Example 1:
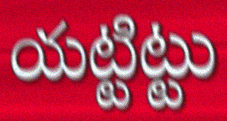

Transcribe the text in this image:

యట్టిట్టు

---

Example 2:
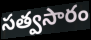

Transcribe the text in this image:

సత్వసారం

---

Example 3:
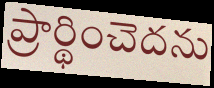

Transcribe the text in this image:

ప్రార్థించెదను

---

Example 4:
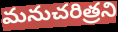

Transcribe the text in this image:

మనుచరిత్రని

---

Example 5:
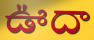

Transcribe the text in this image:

ఊదా